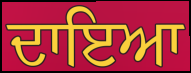
ਦਾਇਆ